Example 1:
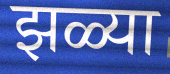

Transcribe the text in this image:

झळ्या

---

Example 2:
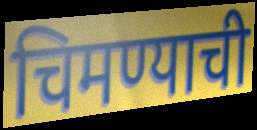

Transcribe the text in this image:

चिमण्याची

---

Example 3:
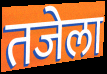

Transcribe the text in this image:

तजेला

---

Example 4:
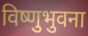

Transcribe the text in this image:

विष्णुभुवना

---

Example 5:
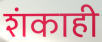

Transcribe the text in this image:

शंकाही